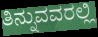
ತಿನ್ನುವವರಲ್ಲಿ